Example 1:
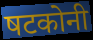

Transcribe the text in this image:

षटकोनी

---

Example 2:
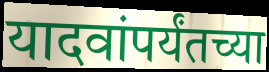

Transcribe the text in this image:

यादवांपर्यंतच्या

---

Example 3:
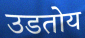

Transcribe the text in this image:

उडतोय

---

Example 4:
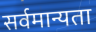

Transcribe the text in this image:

सर्वमान्यता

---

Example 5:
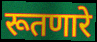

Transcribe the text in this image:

रूतणारे